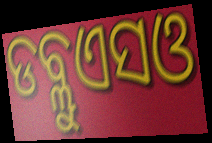
ଡବ୍ଲୁଏସଓ